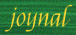
joynal